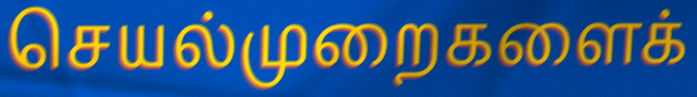
செயல்முறைகளைக்